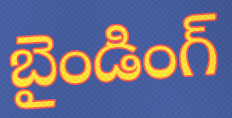
బైండింగ్